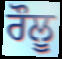
ਰੌਲੂ